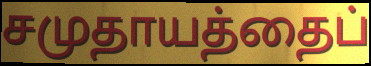
சமுதாயத்தைப்